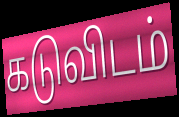
கடுவிடம்